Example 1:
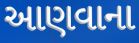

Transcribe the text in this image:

આણવાના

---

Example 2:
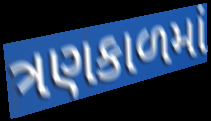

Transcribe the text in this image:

ત્રણકાળમાં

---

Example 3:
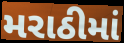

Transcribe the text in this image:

મરાઠીમાં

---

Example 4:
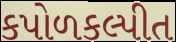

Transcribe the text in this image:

કપોળકલ્પીત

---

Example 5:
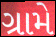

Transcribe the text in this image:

ગ્રામે